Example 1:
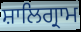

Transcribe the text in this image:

ਸ਼ਾਲਿਗ੍ਰਾਮ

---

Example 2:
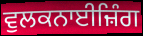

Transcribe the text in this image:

ਵੁਲਕਨਾਈਜ਼ਿੰਗ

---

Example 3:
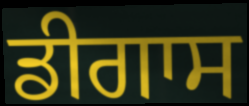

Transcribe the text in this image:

ਡੀਗਾਸ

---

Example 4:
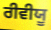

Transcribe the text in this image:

ਰੀਵੀਯੂ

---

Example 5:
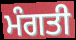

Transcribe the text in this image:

ਮੰਗਤੀ